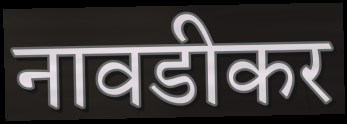
नावडीकर